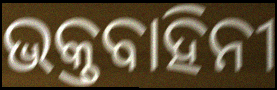
ଭକ୍ତବାହିନୀ